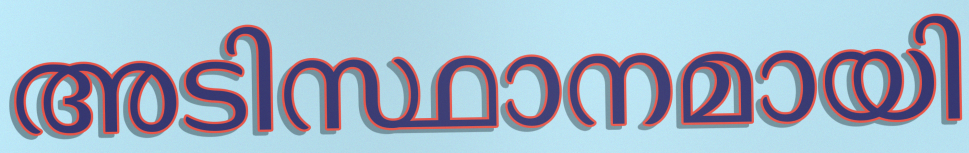
അടിസ്ഥാനമായി